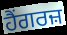
ਹੈਂਗਰਜ਼